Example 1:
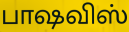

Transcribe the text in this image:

பாஷவிஸ்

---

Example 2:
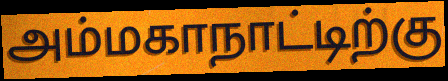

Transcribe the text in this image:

அம்மகாநாட்டிற்கு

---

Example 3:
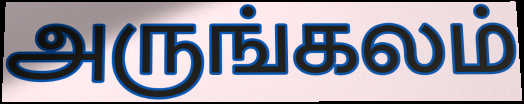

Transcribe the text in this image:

அருங்கலம்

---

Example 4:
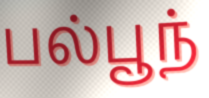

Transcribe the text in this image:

பல்பூந்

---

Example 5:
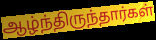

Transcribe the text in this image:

ஆழ்ந்திருந்தார்கள்